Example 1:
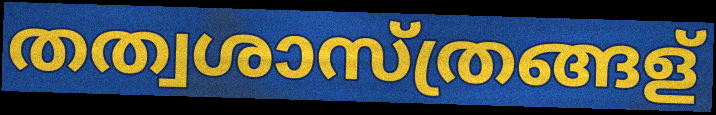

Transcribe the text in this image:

തത്വശാസ്ത്രങ്ങള്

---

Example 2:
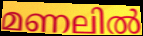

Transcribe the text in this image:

മണലിൽ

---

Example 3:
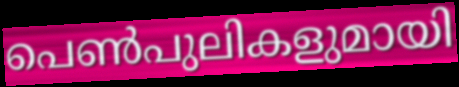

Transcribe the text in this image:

പെൺപുലികളുമായി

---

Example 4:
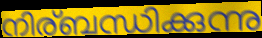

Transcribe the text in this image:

നിര്ബന്ധിക്കുന്നു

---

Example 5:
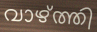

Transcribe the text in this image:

വാഴ്ത്തി